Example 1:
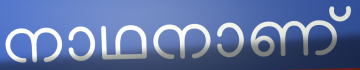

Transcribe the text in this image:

നാഥനാണ്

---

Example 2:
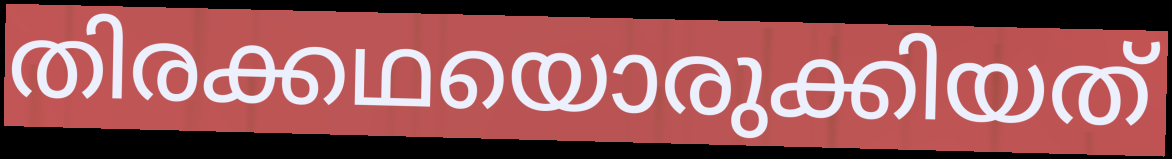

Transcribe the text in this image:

തിരക്കഥയൊരുക്കിയത്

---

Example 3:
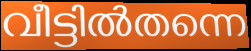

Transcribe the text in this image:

വീട്ടിൽതന്നെ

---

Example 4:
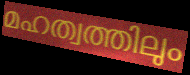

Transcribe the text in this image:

മഹത്വത്തിലും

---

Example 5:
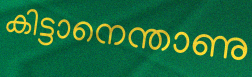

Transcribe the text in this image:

കിട്ടാനെന്താണു